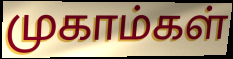
முகாம்கள்